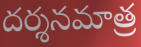
దర్శనమాత్ర